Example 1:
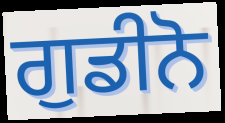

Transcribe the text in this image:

ਗੁਡੀਨੋ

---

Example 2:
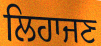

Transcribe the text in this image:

ਲਿਹਾਜਣ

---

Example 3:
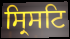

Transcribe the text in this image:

ਸ੍ਰਿਸਟਿ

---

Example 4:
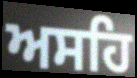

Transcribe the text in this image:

ਅਸਹਿ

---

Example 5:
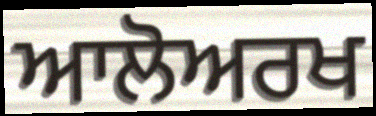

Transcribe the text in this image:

ਆਲੋਅਰਖ